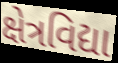
ક્ષેત્રવિદ્યા